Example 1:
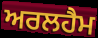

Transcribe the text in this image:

ਅਰਲਹੈਮ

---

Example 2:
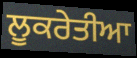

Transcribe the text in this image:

ਲੂਕਰੇਤੀਆ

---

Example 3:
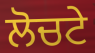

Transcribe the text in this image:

ਲੋਚਟੇ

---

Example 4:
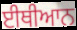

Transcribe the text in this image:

ਈਥੀਆਨ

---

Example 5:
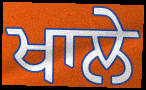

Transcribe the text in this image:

ਖਾਲੇ